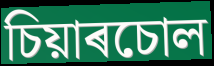
চিয়াৰচোল